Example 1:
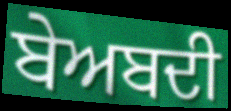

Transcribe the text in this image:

ਬੇਅਬਦੀ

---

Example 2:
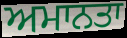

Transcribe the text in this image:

ਅਮਾਨਤਾ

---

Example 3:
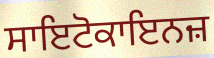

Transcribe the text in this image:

ਸਾਇਟੋਕਾਇਨਜ਼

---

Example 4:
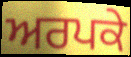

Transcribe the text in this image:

ਅਰਪਕੇ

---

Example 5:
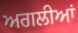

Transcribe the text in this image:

ਅਗਲੀਆਂ